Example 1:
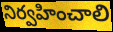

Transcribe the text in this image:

నిర్వహించాలి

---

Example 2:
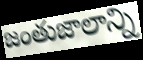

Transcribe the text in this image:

జంతుజాలాన్ని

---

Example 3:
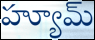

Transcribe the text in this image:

హ్యూమ్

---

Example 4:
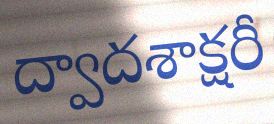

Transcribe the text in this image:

ద్వాదశాక్షరీ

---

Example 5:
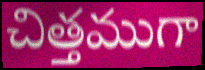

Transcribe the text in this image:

చిత్తముగా